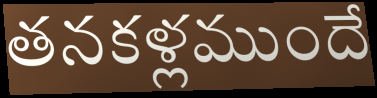
తనకళ్లముందే